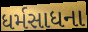
ધર્મસાધના